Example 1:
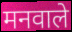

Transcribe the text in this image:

मनवाले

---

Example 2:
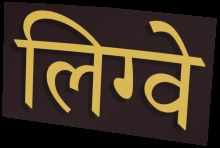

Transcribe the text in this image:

लिग्वे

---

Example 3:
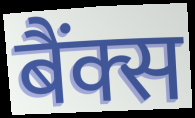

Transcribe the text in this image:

बैंक्‍स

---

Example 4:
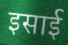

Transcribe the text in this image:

इसाई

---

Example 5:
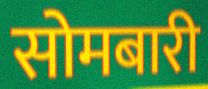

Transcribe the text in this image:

सोमबारी